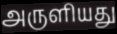
அருளியது